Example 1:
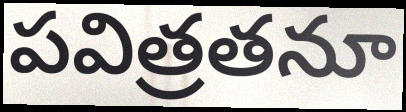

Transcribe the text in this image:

పవిత్రతనూ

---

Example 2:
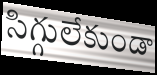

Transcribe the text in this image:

సిగ్గులేకుండా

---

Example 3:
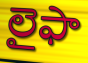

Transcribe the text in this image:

లైఫా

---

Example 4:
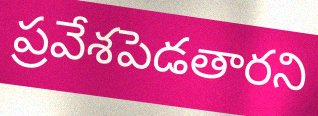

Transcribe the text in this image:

ప్రవేశపెడతారని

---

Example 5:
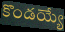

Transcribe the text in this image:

కొండయ్యే